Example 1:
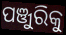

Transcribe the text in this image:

ପଞ୍ଜୁରିକୁ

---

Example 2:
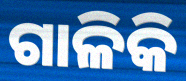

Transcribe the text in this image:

ଗାଳିକି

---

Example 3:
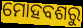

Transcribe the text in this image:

ମୋହବଶରୁ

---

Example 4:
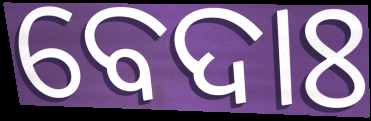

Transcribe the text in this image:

ବେଦାଃ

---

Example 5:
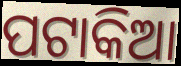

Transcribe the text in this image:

ପଟାକିଆ